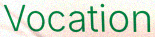
Vocation